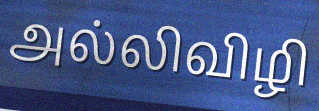
அல்லிவிழி